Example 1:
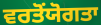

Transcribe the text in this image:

ਵਰਤੋਂਯੋਗਤਾ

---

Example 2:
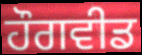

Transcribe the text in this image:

ਹੌਗਵੀਡ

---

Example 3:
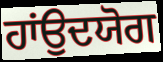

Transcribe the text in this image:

ਹਾਂਉਦਯੋਗ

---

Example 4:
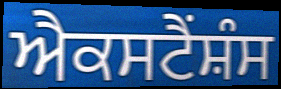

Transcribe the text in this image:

ਐਕਸਟੈਂਸ਼ੰਸ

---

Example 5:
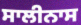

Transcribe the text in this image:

ਸਾਲੀਨਾਸ